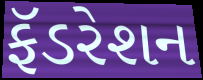
ફૅડરેશન